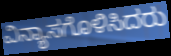
ವಿನ್ಯಾಸಗೊಳಿಸಿದರು